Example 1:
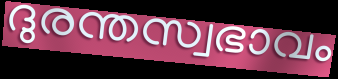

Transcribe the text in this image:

ദുരന്തസ്വഭാവം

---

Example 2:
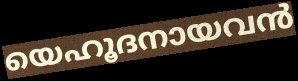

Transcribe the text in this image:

യെഹൂദനായവൻ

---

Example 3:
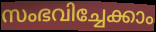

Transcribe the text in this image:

സംഭവിച്ചേക്കാം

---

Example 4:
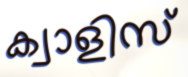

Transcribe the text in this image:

ക്വാളിസ്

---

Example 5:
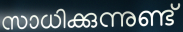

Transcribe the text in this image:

സാധിക്കുന്നുണ്ട്